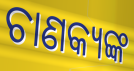
ଚାଣକ୍ୟଙ୍କ